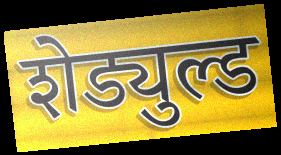
शेड्युल्ड